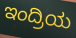
ಇಂದ್ರಿಯ